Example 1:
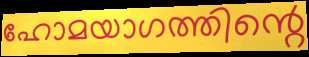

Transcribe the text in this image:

ഹോമയാഗത്തിന്റെ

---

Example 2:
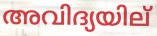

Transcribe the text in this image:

അവിദ്യയില്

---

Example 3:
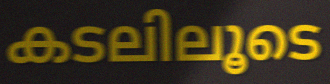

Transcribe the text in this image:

കടലിലൂടെ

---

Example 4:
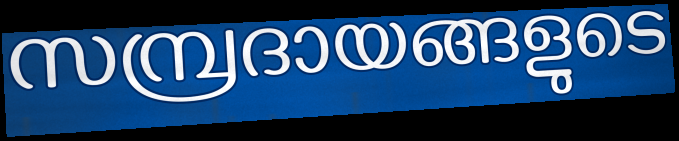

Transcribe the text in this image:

സമ്പ്രദായങ്ങളുടെ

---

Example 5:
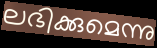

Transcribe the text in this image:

ലഭിക്കുമെന്നു